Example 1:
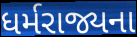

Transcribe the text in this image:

ધર્મરાજ્યના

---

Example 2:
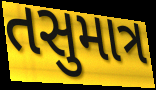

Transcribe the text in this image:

તસુમાત્ર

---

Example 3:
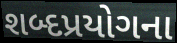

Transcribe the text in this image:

શબ્દપ્રયોગના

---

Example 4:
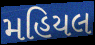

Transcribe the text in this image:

મહિયલ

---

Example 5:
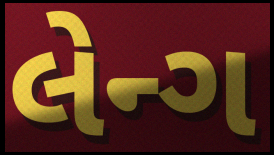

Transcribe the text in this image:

લેન્ગ